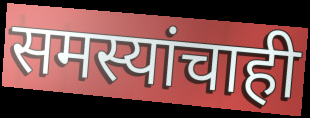
समस्यांचाही